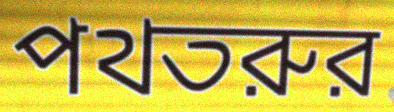
পথতরুর